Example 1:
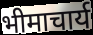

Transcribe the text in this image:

भीमाचार्य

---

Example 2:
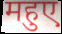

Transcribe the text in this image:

महुए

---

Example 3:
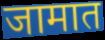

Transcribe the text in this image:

जामात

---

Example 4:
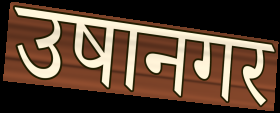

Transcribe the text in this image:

उषानगर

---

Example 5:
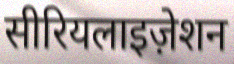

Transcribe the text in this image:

सीरियलाइज़ेशन